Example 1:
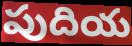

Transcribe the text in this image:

పుదియ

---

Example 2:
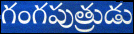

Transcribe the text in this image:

గంగపుత్రుడు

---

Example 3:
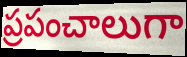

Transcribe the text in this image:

ప్రపంచాలుగా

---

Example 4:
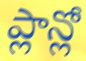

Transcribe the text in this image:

ప్లాన్లో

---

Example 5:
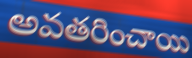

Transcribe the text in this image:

అవతరించాయి